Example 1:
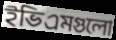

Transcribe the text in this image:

ইভিএমগুলো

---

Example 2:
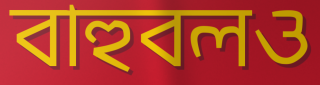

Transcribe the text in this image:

বাহুবলও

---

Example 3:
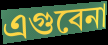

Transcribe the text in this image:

এগুবেনা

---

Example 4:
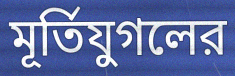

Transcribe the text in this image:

মূর্তিযুগলের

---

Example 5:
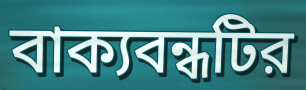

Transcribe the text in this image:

বাক্যবন্ধটির